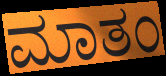
ಮಾತಂ